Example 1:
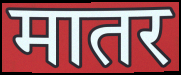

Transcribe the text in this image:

मातर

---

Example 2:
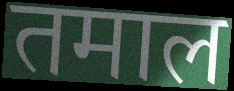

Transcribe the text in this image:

तमाल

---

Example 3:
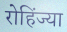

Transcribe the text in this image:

रोहिंज्या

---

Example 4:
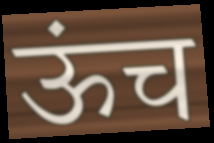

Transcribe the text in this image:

ऊंच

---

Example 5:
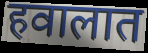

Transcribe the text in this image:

हवालात